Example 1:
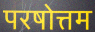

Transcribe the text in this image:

परषोत्तम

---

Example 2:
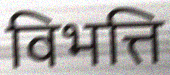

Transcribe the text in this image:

विभत्ति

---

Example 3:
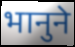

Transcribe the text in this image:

भानुने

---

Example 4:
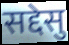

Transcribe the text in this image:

सद्देसु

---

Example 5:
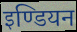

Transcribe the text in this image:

इण्डियन